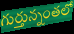
గుర్తున్నంతలో